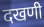
दखणी